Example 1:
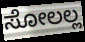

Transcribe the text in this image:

ಸೋಲಲ್ಲ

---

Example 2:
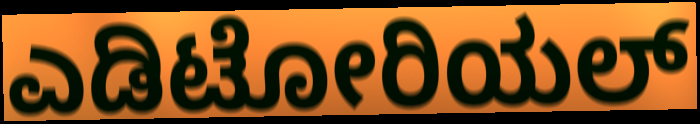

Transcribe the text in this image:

ಎಡಿಟೋರಿಯಲ್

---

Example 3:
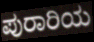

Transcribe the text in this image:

ಪುರಾರಿಯ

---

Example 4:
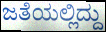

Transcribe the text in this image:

ಜತೆಯಲ್ಲಿದ್ದು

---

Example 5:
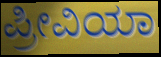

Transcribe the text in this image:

ಪ್ರೀವಿಯಾ